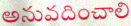
అనువదించాలి